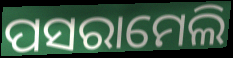
ପସରାମେଲି